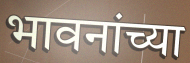
भावनांच्या